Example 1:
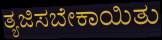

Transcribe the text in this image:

ತ್ಯಜಿಸಬೇಕಾಯಿತು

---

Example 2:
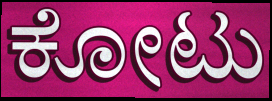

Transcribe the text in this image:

ಕೋಟು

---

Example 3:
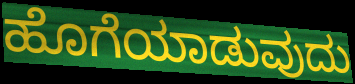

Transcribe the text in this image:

ಹೊಗೆಯಾಡುವುದು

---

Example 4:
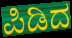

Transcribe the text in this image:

ಪಿಡಿದ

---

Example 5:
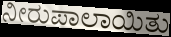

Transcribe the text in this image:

ನೀರುಪಾಲಾಯಿತು